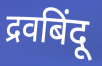
द्रवबिंदू